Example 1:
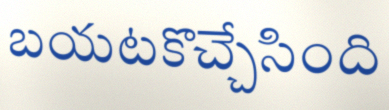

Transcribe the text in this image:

బయటకొచ్చేసింది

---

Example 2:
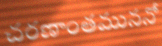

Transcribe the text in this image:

చరణాంతముననో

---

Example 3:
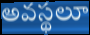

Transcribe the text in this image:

అవస్థలూ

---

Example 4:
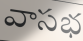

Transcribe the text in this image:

వాసభ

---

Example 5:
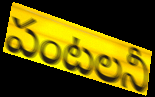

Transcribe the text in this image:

పంటలనీ